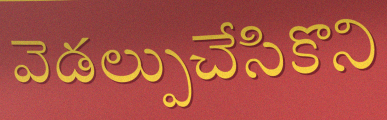
వెడల్పుచేసికొని